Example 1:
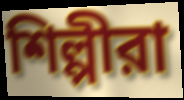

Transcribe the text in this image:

শিল্পীরা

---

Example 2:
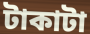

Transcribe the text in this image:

টাকাটা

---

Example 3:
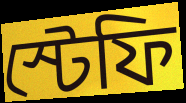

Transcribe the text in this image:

স্টেফি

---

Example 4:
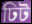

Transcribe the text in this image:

ঢিট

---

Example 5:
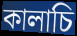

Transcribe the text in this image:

কালাচি